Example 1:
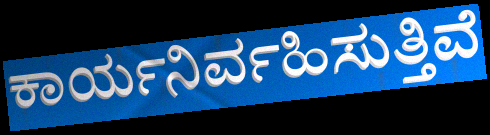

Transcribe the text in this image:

ಕಾರ್ಯನಿರ್ವಹಿಸುತ್ತಿವೆ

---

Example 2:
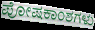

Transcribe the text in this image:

ಪೋಷಕಾಂಶಗಳು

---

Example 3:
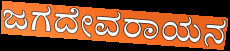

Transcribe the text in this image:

ಜಗದೇವರಾಯನ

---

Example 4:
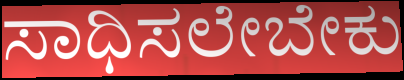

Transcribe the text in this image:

ಸಾಧಿಸಲೇಬೇಕು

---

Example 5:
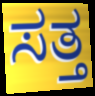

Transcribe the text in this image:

ಸತ್ತ